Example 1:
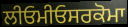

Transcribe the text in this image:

ਲੀਓਮੀਓਸਰਕੋਮਾ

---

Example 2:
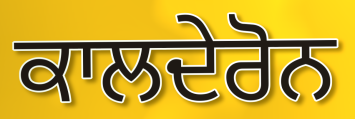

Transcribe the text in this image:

ਕਾਲਦੇਰੋਨ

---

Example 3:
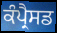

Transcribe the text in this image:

ਕੰਪ੍ਰੈਸਡ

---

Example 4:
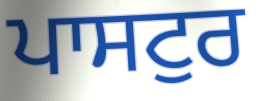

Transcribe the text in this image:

ਪਾਸਟੁਰ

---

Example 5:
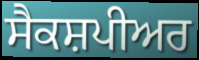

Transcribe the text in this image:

ਸੈਕਸ਼ਪੀਅਰ